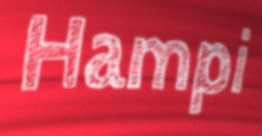
Hampi